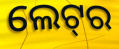
ଲେଟ୍‌ର